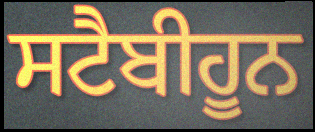
ਸਟੈਬੀਹੂਨ